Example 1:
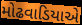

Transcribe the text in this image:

મોઢવાડિયાએ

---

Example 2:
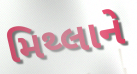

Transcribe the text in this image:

મિથ્લાને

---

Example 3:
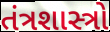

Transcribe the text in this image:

તંત્રશાસ્ત્રો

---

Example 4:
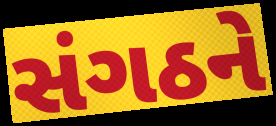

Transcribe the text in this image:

સંગઠને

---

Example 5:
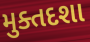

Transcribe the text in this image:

મુક્તદશા